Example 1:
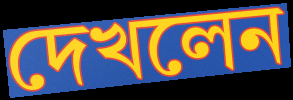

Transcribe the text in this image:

দেখলেন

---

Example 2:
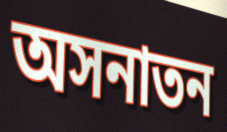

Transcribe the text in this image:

অসনাতন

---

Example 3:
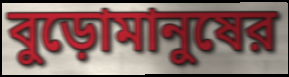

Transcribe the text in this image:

বুড়োমানুষের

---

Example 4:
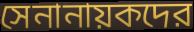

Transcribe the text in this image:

সেনানায়কদের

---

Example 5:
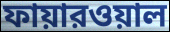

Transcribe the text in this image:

ফায়ারওয়াল